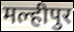
मल्हीपुर